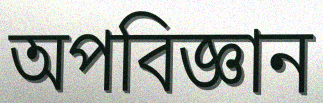
অপবিজ্ঞান